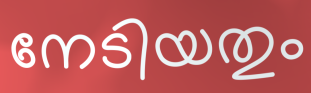
നേടിയതും